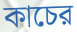
কাচের